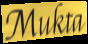
Mukta